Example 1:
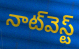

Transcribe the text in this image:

నాట్‌వెస్ట్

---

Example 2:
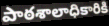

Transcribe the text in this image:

పాఠశాలాధికారికి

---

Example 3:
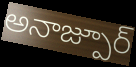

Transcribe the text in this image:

అనాజ్పూర్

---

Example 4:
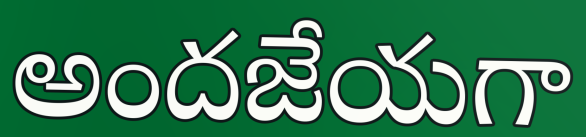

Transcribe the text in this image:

అందజేయగా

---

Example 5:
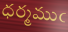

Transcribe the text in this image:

ధర్మముఁ